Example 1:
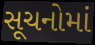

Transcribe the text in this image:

સૂચનોમાં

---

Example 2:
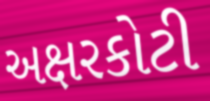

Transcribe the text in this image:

અક્ષરકોટી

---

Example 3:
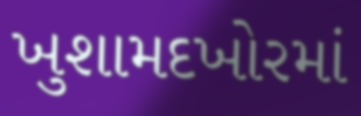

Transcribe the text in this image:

ખુશામદખોરમાં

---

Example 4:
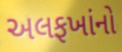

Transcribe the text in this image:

અલફખાંનો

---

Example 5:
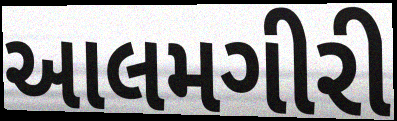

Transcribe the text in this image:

આલમગીરી